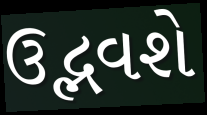
ઉદ્ભવશે